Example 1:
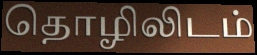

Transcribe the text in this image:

தொழிலிடம்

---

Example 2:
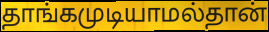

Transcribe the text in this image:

தாங்கமுடியாமல்தான்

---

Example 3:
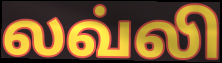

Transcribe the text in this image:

லவ்லி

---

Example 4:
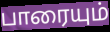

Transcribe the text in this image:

பாரையும்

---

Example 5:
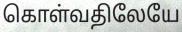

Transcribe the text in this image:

கொள்வதிலேயே